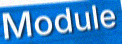
Module